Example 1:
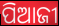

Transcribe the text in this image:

ପିଆଜୀ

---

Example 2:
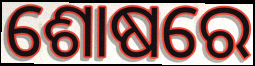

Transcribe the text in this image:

ଶୋଷରେ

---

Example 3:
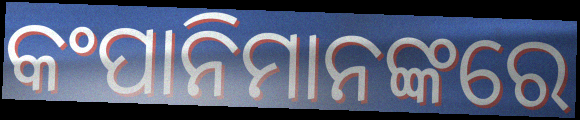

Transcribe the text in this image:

କଂପାନିମାନଙ୍କରେ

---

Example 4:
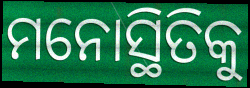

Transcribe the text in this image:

ମନୋସ୍ଥିତିକୁ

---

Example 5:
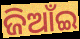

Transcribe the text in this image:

ଜିଆଁଇ